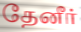
தேனீர்